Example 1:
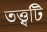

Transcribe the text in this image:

তত্ত্বটি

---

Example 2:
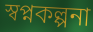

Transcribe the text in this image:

স্বপ্নকল্পনা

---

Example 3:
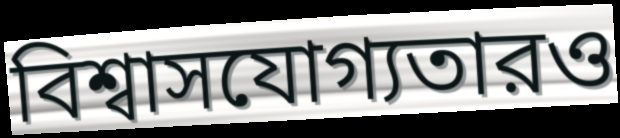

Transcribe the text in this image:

বিশ্বাসযোগ্যতারও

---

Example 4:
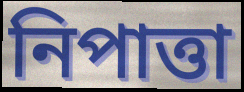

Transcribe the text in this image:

নিপাত্তা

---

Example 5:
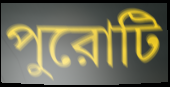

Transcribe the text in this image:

পুরোটি